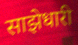
साझेधारी